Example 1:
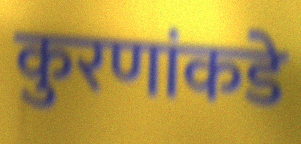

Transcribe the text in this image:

कुरणांकडे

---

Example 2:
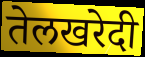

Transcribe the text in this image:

तेलखरेदी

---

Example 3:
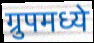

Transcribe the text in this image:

ग्रुपमध्ये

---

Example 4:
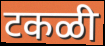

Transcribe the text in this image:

टकळी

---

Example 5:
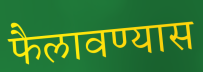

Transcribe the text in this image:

फैलावण्यास